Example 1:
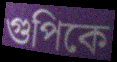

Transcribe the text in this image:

গুপিকে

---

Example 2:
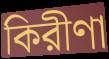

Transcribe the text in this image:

কিরীণা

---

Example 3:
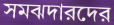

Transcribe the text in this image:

সমঝদারদের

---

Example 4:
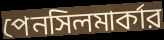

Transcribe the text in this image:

পেনসিলমার্কার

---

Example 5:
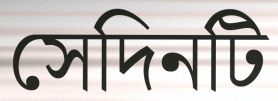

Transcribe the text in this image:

সেদিনটি